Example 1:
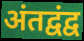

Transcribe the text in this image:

अंतद्वंद्व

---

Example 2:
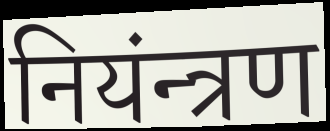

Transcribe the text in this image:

नियंन्त्रण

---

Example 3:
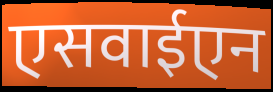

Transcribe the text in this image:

एसवाईएन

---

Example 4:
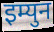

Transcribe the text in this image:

इम्युन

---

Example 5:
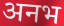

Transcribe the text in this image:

अनभ